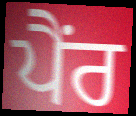
ਪੈਂਰ